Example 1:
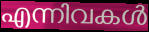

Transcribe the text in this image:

എന്നിവകൾ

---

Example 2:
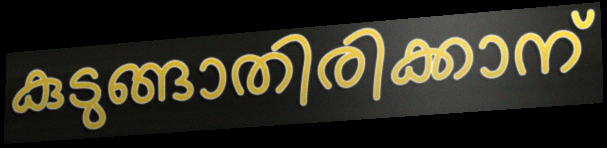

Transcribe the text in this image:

കുടുങ്ങാതിരിക്കാന്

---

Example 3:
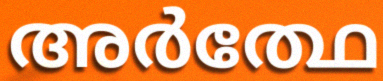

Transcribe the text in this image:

അർത്ഥേ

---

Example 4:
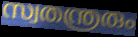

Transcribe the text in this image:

സ്വതന്ത്രരും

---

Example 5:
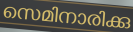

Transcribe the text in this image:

സെമിനാരിക്കു